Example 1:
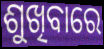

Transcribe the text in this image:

ଶୁଖିବାରେ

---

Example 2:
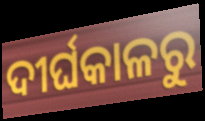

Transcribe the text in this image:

ଦୀର୍ଘକାଳରୁ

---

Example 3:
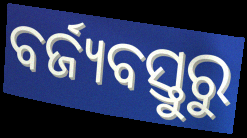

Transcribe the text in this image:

ବର୍ଜ୍ୟବସ୍ତୁରୁ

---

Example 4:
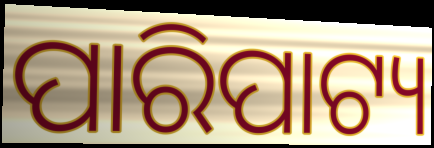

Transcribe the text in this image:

ପାରିପାଟ୍ୟ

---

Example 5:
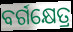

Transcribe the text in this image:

ବର୍ଗକ୍ଷେତ୍ର